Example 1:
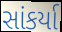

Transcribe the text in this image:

સાંકર્યા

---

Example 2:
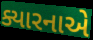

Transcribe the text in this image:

ક્યારનાએ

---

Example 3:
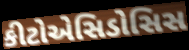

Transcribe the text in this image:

કીટોએસિડોસિસ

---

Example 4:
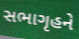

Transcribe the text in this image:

સભાગૃહને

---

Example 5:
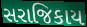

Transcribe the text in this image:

સરાજિકાય